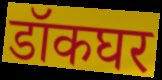
डॉकघर